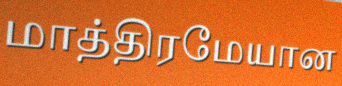
மாத்திரமேயான